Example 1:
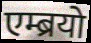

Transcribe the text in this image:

एम्ब्रयो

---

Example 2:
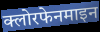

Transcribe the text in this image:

क्लोरफेनमाइन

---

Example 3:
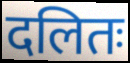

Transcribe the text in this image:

दलितः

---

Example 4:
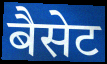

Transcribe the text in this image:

बैसेट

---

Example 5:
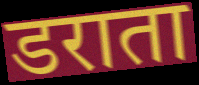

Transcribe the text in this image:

डराता